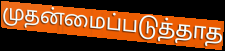
முதன்மைப்படுத்தாத